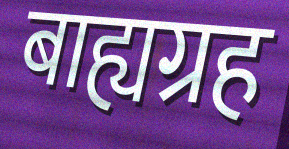
बाह्यग्रह